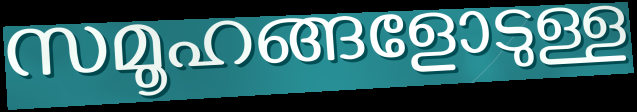
സമൂഹങ്ങളോടുള്ള